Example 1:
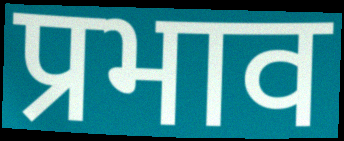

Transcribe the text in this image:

प्रभाव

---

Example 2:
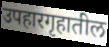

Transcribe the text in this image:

उपहारगृहातील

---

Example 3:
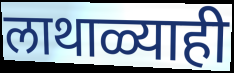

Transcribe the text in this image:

लाथाळ्याही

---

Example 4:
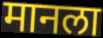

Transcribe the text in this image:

मानला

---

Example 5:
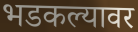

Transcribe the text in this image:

भडकल्यावर